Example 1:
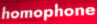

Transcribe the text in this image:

homophone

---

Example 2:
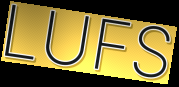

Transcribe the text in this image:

LUFS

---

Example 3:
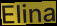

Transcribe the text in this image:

Elina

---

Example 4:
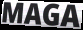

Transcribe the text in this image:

MAGA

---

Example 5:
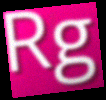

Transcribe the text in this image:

Rg